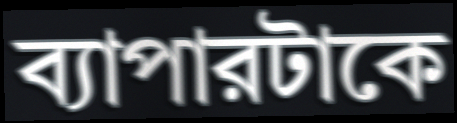
ব্যাপারটাকে